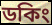
ডকিং